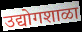
उद्योगशाळा